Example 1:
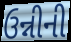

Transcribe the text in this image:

ઉન્નીની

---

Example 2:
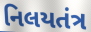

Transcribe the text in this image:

નિલયતંત્ર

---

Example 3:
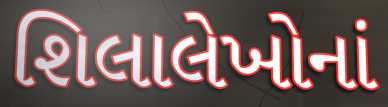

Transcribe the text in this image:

શિલાલેખોનાં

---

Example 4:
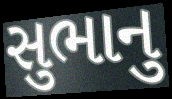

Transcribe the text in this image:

સુભાનુ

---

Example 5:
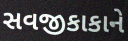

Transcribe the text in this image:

સવજીકાકાને